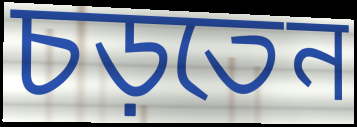
চড়তেন